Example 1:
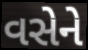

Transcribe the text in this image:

વસેને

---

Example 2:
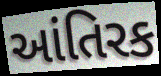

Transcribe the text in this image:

આંતિરક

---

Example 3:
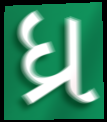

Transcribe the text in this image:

ધ્ર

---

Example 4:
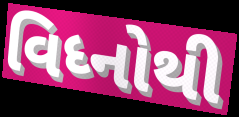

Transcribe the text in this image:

વિધ્નોથી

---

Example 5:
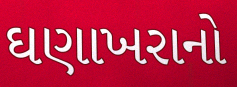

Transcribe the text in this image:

ઘણાખરાનો